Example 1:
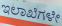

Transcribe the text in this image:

ಇಲಾಖೆಗಳೇ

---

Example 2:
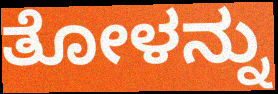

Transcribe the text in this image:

ತೋಳನ್ನು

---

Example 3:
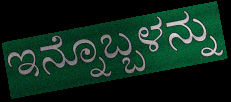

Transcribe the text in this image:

ಇನ್ನೊಬ್ಬಳನ್ನು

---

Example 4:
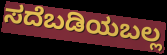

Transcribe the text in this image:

ಸದೆಬಡಿಯಬಲ್ಲ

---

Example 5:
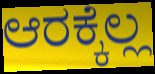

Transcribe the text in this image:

ಆರಕ್ಕೆಲ್ಲ